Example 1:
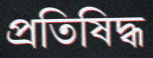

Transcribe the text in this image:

প্রতিষিদ্ধ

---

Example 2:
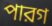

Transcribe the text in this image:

পারগ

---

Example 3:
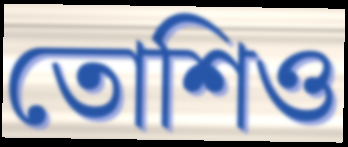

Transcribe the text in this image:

তোশিও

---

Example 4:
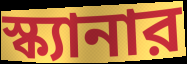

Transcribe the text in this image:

স্ক্যানার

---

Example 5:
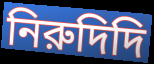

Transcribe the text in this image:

নিরুদিদি